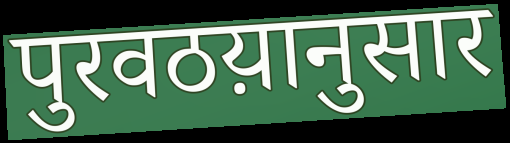
पुरवठय़ानुसार